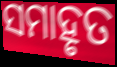
ସମାହୃତ